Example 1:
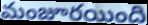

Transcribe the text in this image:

మంజూరయింది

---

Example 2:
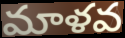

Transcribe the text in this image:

మాళవ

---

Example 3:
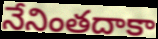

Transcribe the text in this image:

నేనింతదాకా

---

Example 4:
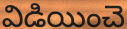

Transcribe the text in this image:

విడియించె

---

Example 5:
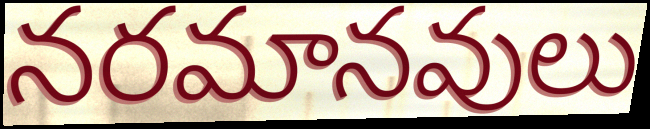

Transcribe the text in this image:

నరమానవులు